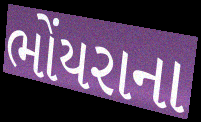
ભોંયરાના